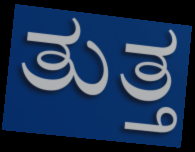
ತುತ್ತ